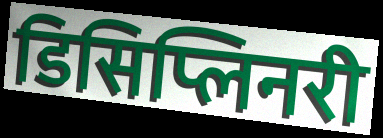
डिसिप्लिनरी